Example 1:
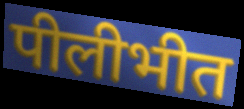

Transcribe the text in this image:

पीलीभीत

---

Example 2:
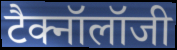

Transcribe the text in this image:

टैक्नॉलॉजी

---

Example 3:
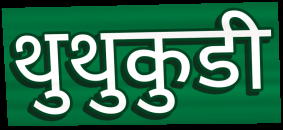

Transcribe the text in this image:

थुथुकुडी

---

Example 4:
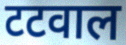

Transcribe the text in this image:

टटवाल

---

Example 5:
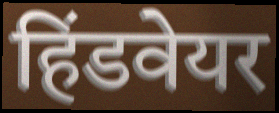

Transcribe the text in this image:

हिंडवेयर